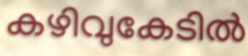
കഴിവുകേടിൽ